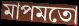
মাপমতো